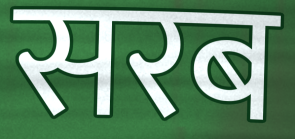
सरब